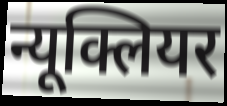
न्यूक्लियर